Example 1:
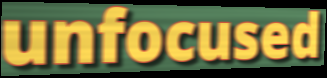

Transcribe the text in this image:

unfocused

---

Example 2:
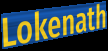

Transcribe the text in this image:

Lokenath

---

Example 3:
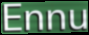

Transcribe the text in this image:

Ennu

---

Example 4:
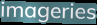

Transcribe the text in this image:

imageries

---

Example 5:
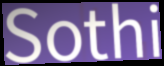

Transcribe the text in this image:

Sothi